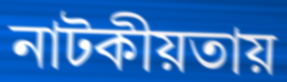
নাটকীয়তায়